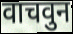
वाचवुन